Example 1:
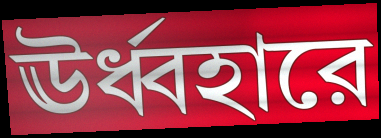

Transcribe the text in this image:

ঊর্ধ্বহারে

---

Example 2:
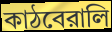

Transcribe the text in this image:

কাঠবেরালি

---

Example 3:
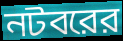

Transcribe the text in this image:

নটবরের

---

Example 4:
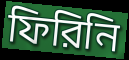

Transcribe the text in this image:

ফিরিনি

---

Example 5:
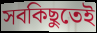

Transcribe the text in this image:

সবকিছুতেই